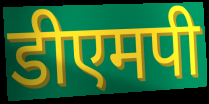
डीएमपी